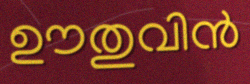
ഊതുവിൻ